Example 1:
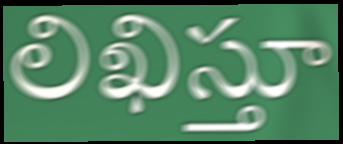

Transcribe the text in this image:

లిఖిస్తూ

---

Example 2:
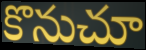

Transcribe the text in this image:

కొనుచూ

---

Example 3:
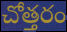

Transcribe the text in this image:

చోత్తరం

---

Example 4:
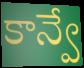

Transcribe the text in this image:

కాన్వే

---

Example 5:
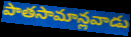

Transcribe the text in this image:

పాతసామాన్లవాడు